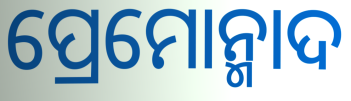
ପ୍ରେମୋନ୍ମାଦ